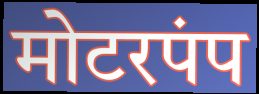
मोटरपंप